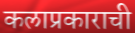
कलाप्रकाराची